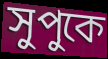
সুপুকে